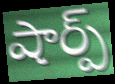
షార్ప్